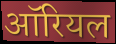
ऑरियल